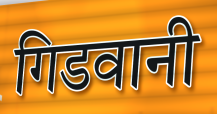
गिडवानी